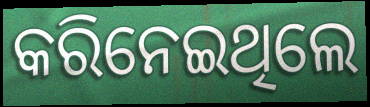
କରିନେଇଥିଲେ